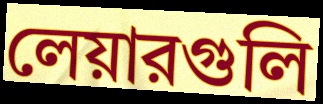
লেয়ারগুলি